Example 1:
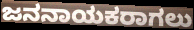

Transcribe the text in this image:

ಜನನಾಯಕರಾಗಲು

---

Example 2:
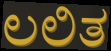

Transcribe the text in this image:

ಲಲಿತ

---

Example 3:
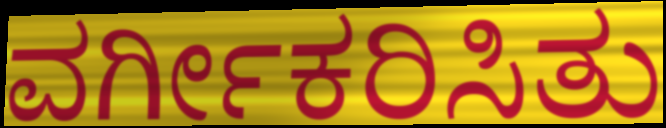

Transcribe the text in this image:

ವರ್ಗೀಕರಿಸಿತು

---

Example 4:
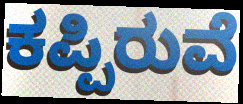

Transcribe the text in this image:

ಕಪ್ಪಿರುವೆ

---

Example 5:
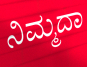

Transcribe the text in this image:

ನಿಮ್ಮದಾ